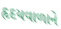
હૃદયવાળાને